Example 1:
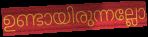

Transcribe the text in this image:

ഉണ്ടായിരുന്നല്ലോ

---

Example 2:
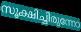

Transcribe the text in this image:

സൂക്ഷിച്ചിരുന്നോ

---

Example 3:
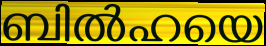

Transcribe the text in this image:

ബിൽഹയെ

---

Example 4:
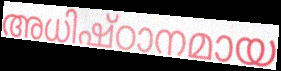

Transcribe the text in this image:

അധിഷ്ഠാനമായ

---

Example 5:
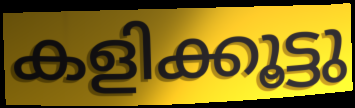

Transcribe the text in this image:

കളിക്കൂട്ടു